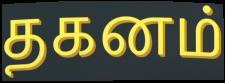
தகனம்